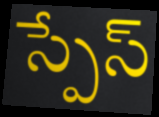
స్పేస్